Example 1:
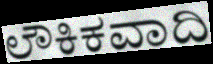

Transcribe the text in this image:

ಲೌಕಿಕವಾದಿ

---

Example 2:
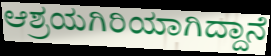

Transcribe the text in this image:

ಆಶ್ರಯಗಿರಿಯಾಗಿದ್ದಾನೆ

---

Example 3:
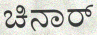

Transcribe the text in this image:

ಚಿನಾರ್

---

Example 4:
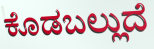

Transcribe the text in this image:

ಕೊಡಬಲ್ಲುದೆ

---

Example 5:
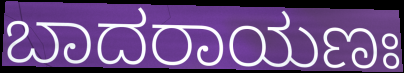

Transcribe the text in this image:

ಬಾದರಾಯಣಃ